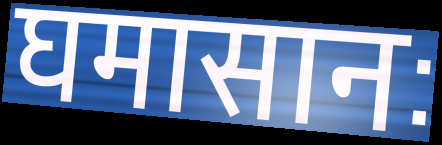
घमासानः